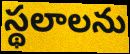
స్థలాలను